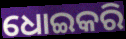
ଧୋଇକରି